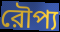
রৌপ্য